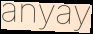
anyay